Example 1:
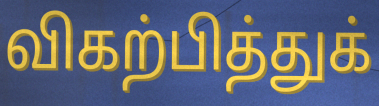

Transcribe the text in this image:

விகற்பித்துக்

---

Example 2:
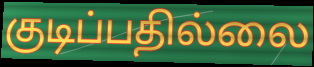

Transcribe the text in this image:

குடிப்பதில்லை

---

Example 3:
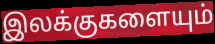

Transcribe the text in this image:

இலக்குகளையும்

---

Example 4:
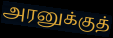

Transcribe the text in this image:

அரனுக்குத்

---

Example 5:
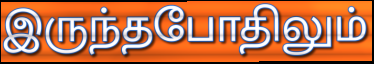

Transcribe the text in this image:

இருந்தபோதிலும்